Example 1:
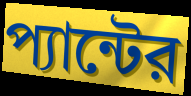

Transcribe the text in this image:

প্যান্টের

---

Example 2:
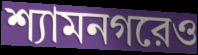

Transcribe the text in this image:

শ্যামনগরেও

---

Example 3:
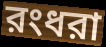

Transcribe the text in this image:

রংধরা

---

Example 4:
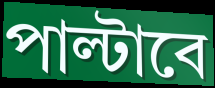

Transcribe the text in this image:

পাল্টাবে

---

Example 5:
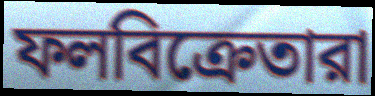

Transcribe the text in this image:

ফলবিক্রেতারা